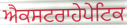
ਐਕਸਟਰਾਹੇਪੇਟਿਕ